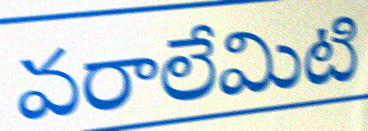
వరాలేమిటి